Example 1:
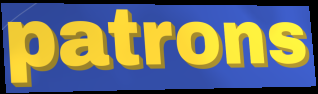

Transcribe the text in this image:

patrons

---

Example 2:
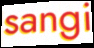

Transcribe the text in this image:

sangi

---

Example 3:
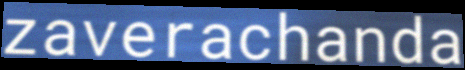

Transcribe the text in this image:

zaverachanda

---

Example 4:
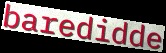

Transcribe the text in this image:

baredidde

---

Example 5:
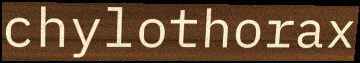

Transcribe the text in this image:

chylothorax